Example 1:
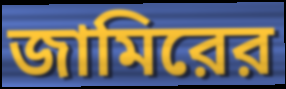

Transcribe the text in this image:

জামিরের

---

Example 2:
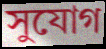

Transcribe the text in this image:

সুযোগ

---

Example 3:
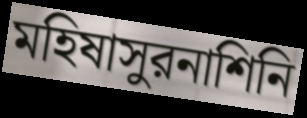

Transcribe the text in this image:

মহিষাসুরনাশিনি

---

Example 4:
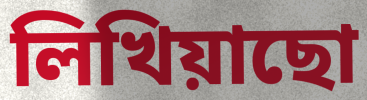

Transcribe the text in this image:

লিখিয়াছো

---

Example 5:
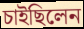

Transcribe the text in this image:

চাইছিলেন